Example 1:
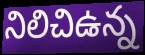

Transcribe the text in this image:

నిలిచిఉన్న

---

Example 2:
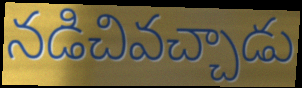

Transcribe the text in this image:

నడిచివచ్చాడు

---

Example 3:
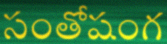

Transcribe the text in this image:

సంతోషంగ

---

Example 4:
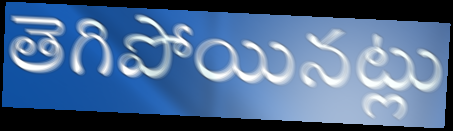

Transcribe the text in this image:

తెగిపోయినట్లు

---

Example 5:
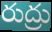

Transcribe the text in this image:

రుద్రు